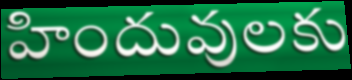
హిందువులకు